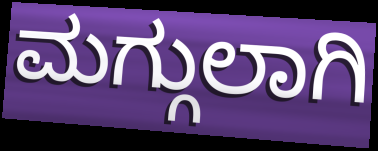
ಮಗ್ಗುಲಾಗಿ